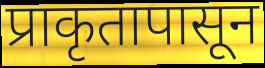
प्राकृतापासून